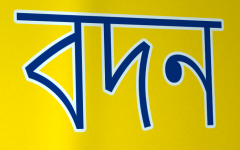
বদন